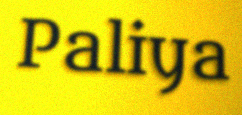
Paliya